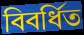
বিবর্ধিত